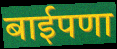
बाईपणा